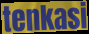
tenkasi